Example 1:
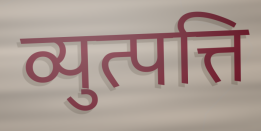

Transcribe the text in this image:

व्युत्पत्ति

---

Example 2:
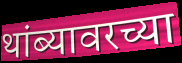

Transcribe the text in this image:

थांब्यावरच्या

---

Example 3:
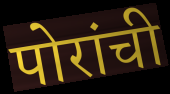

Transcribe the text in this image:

पोरांची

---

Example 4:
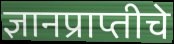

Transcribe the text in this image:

ज्ञानप्राप्तीचे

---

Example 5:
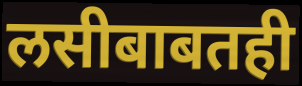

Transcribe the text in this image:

लसीबाबतही